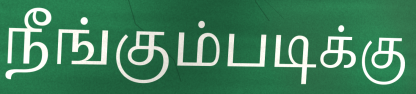
நீங்கும்படிக்கு